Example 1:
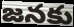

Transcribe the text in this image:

జనకు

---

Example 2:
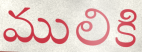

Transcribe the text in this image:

ములికి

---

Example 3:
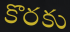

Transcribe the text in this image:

కొరకు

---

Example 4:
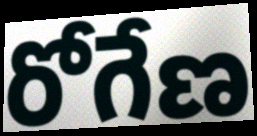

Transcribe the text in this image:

రోగేణ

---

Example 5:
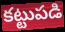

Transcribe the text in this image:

కట్టుపడి